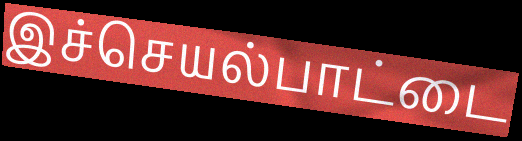
இச்செயல்பாட்டை